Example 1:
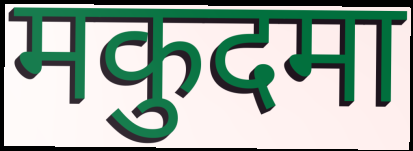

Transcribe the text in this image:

मकुदमा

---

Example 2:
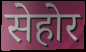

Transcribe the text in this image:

सेहोर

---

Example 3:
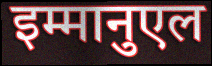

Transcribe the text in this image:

इम्मानुएल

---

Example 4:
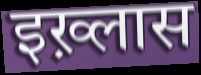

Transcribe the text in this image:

इख़्लास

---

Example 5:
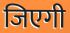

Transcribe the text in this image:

जिएगी